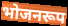
भोजनरूप